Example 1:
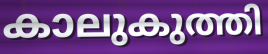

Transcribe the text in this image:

കാലുകുത്തി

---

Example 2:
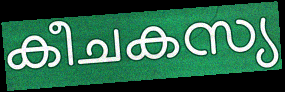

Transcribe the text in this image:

കീചകസ്യ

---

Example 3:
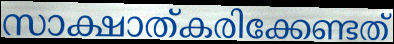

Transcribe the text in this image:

സാക്ഷാത്കരിക്കേണ്ടത്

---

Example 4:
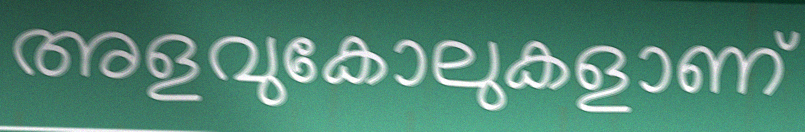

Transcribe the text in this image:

അളവുകോലുകളാണ്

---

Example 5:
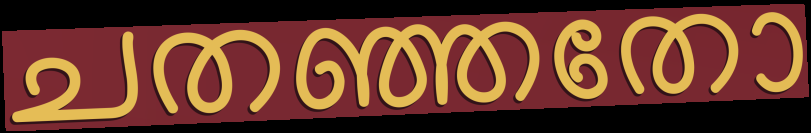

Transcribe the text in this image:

ചതഞ്ഞതോ